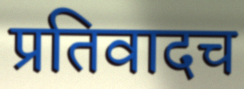
प्रतिवादच